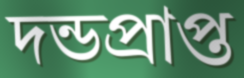
দন্ডপ্রাপ্ত